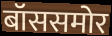
बॉससमोर